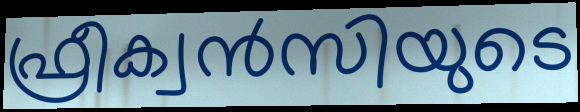
ഫ്രീക്വൻസിയുടെ